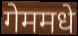
गेममधे